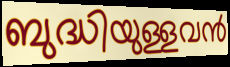
ബുദ്ധിയുള്ളവൻ